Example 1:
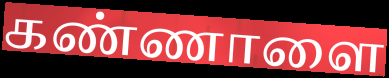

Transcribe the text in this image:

கண்ணாளை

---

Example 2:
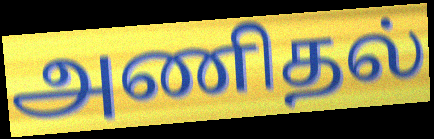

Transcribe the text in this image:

அணிதல்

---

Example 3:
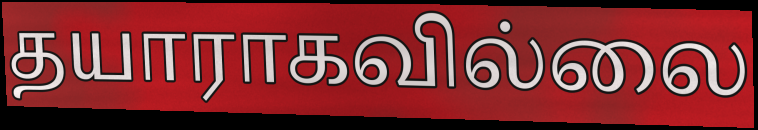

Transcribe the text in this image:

தயாராகவில்லை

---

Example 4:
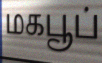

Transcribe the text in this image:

மகபூப்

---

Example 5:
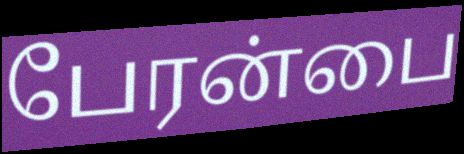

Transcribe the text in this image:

பேரன்பை